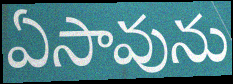
ఏసావును